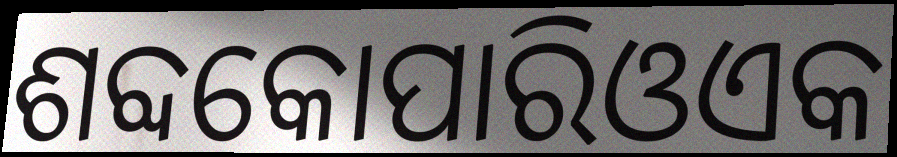
ଶବ୍ଦକୋପାରିଓଏକ